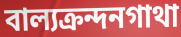
বাল্যক্রন্দনগাথা